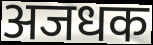
अजधक